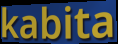
kabita